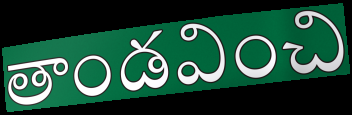
తాండవించి